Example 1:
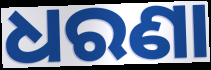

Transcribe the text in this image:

ଧରଣା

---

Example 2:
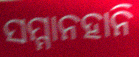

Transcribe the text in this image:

ସମ୍ମାନହାନି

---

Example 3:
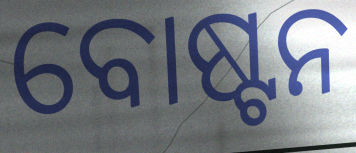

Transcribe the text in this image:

ବୋଷ୍ଟନ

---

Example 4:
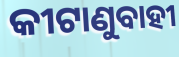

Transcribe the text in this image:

କୀଟାଣୁବାହୀ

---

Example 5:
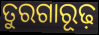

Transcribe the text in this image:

ତୁରଗାରୂଢ଼